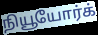
நியூயோர்க்